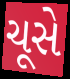
ચૂસે